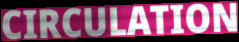
CIRCULATION